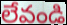
లేవండి